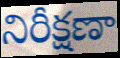
నిరీక్షణా